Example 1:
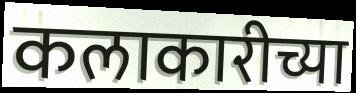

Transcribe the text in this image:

कलाकारीच्या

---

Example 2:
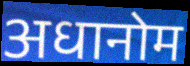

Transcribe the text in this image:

अधानोम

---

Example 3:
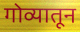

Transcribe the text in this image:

गोव्यातून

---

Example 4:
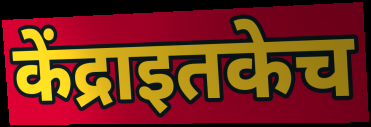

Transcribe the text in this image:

केंद्राइतकेच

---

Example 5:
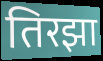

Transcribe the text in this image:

तिरझा